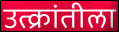
उत्क्रांतीला